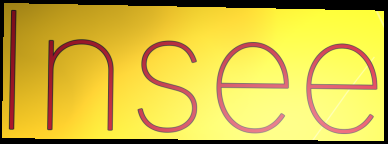
Insee